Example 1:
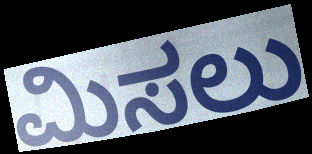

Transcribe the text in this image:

ಮಿಸಲು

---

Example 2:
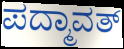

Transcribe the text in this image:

ಪದ್ಮಾವತ್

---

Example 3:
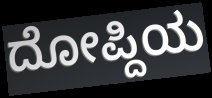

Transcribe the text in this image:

ದೋಪ್ದಿಯ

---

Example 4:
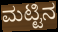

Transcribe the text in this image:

ಮಟ್ಟಿನ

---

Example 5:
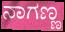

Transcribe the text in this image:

ನಾಗಣ್ಣ